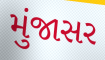
મુંજાસર